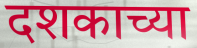
दशकाच्या